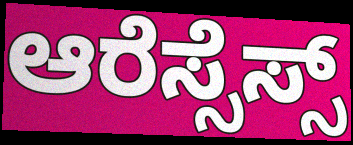
ಆರೆಸ್ಸೆಸ್ಸ್